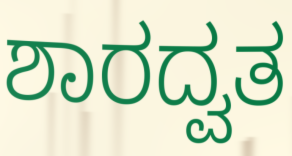
ಶಾರದ್ವತ